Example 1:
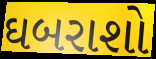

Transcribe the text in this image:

ઘબરાશો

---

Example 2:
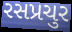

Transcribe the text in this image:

રસપ્રચુર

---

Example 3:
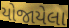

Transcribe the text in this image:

યોજાયેલા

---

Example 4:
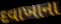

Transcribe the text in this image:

દવાખાના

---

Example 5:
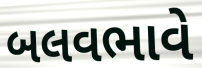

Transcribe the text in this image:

બલવભાવે